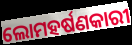
ଲୋମହର୍ଷଣକାରୀ